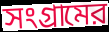
সংগ্রামের